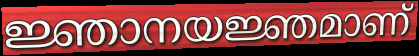
ജ്ഞാനയജ്ഞമാണ്